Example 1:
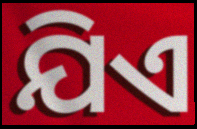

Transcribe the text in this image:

ଯିଏ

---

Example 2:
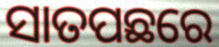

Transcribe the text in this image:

ସାତପଛରେ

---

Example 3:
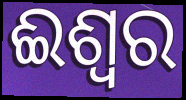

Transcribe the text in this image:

ଈଶ୍ବର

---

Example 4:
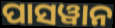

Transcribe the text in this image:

ପାସୱାନ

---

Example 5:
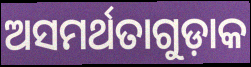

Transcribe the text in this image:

ଅସମର୍ଥତାଗୁଡ଼ାକ